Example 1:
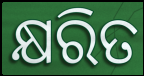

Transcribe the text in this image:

କ୍ଷରିତ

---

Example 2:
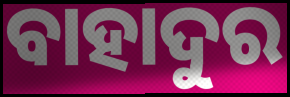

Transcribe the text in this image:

ବାହାଦୁର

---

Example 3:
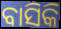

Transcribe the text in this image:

ବାସିକି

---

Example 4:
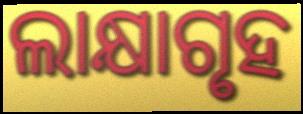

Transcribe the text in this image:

ଲାକ୍ଷାଗୃହ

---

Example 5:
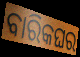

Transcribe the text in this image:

ବାରିକଘର